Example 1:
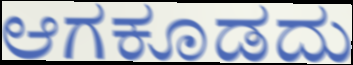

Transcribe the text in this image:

ಆಗಕೂಡದು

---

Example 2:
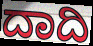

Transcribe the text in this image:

ದಾದಿ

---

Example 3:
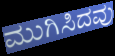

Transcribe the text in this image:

ಮುಗಿಸಿದವು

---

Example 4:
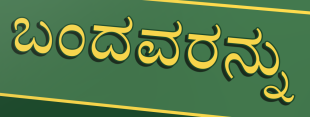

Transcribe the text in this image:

ಬಂದವರನ್ನು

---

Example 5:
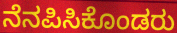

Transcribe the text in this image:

ನೆನಪಿಸಿಕೊಂಡರು